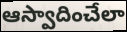
ఆస్వాదించేలా